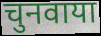
चुनवाया